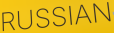
RUSSIAN